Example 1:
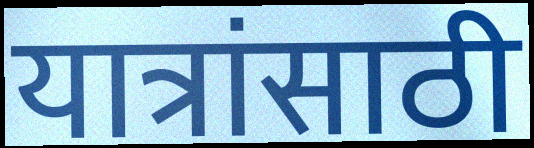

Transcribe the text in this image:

यात्रांसाठी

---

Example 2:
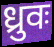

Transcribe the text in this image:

ध्रुवः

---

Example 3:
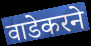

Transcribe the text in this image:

वाडेकरने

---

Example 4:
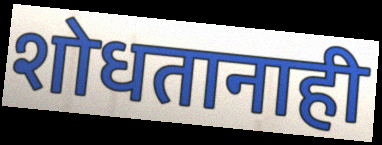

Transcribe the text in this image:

शोधतानाही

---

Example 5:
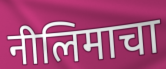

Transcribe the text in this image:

नीलिमाचा